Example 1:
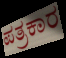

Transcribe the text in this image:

ಪತ್ರಕಾರ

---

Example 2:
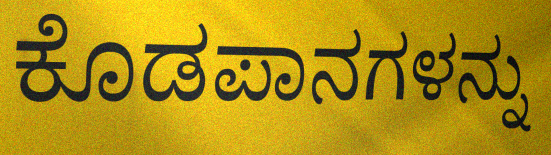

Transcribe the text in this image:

ಕೊಡಪಾನಗಳನ್ನು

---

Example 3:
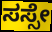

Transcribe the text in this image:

ಸಸ್ಸೇ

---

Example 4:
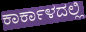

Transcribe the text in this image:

ಕಾರ್ಕಾಳದಲ್ಲಿ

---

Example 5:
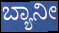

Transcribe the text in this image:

ಬ್ಯಾನೀ